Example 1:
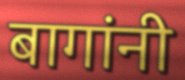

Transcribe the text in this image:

बागांनी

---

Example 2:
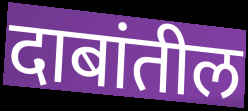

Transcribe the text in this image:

दाबांतील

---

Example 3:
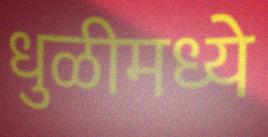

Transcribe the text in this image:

धुळीमध्ये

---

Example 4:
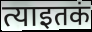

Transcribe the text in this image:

त्याइतकं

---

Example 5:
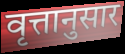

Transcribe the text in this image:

वृत्तानुसार